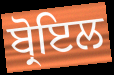
ਬ੍ਰੋਇਲ